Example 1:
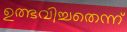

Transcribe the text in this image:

ഉത്ഭവിച്ചതെന്ന്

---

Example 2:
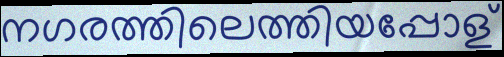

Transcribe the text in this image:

നഗരത്തിലെത്തിയപ്പോള്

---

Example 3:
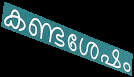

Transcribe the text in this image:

കണ്ടശേഷം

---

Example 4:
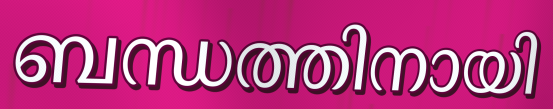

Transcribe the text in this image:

ബന്ധത്തിനായി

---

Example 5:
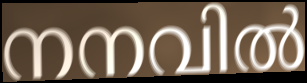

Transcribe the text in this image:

നനവിൽ